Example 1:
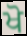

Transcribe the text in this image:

ਖੋ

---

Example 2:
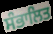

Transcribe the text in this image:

ਸੰਭਾਲਿਤ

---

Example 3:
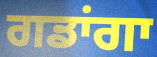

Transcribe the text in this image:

ਗਡਾਂਗਾ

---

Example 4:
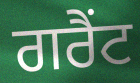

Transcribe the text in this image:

ਗਰੈਂਟ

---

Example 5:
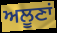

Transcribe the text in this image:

ਅਲੂਣਾਂ